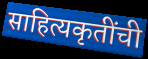
साहित्यकृतींची